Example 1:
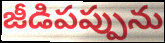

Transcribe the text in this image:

జీడిపప్పును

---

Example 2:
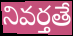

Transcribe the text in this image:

నివర్తతే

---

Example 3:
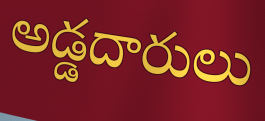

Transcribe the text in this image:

అడ్డదారులు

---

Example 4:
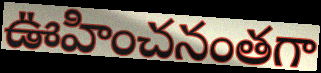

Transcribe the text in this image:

ఊహించనంతగా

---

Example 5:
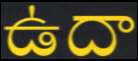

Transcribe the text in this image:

ఉదా